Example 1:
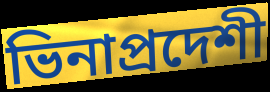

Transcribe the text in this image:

ভিনাপ্রদেশী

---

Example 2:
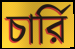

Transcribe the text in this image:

চার্রি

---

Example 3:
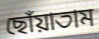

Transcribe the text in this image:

ছোঁয়াতাম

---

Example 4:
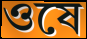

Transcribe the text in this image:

ওষে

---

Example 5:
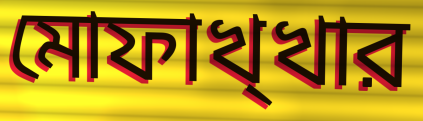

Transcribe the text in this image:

মোফাখ্খার